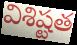
విశిష్టత